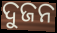
ଦୁଜନ